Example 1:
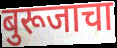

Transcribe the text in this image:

बुरूजाचा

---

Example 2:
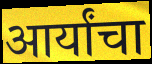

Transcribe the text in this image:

आर्यांचा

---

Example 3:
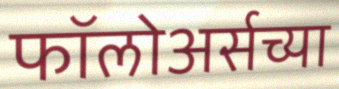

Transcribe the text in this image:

फॉलोअर्सच्या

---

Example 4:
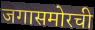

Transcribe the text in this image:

जगासमोरची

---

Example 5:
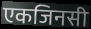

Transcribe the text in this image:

एकजिनसी